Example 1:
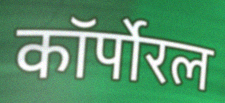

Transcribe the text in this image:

कॉर्पोरल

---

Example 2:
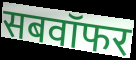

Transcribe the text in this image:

सबवॉफर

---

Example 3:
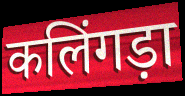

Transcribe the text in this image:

कलिंगड़ा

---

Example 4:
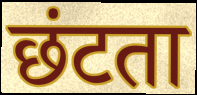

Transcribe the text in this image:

छंटता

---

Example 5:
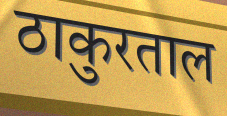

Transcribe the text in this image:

ठाकुरताल